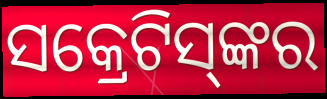
ସକ୍ରେଟିସ୍‌ଙ୍କର